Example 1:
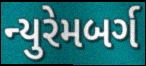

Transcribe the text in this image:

ન્યુરેમબર્ગ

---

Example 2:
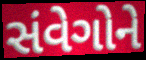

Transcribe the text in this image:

સંવેગોને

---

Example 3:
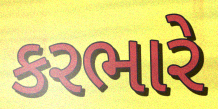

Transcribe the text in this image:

કરભારે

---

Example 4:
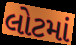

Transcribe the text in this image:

લોટમાં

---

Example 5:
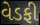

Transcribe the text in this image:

વેડફી